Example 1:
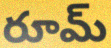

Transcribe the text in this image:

రూమ్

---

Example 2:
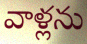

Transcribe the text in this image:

వాళ్లను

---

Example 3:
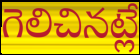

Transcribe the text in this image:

గెలిచినట్లే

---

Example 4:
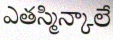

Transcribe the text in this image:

ఎతస్మిన్కాలే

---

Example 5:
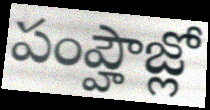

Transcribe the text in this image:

పంప్హౌజ్లో